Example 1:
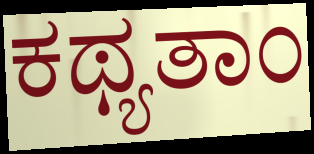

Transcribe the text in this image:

ಕಥ್ಯತಾಂ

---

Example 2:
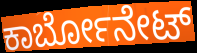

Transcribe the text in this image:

ಕಾರ್ಬೋನೇಟ್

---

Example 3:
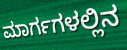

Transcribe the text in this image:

ಮಾರ್ಗಗಳಲ್ಲಿನ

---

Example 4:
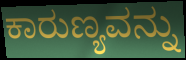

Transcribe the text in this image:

ಕಾರುಣ್ಯವನ್ನು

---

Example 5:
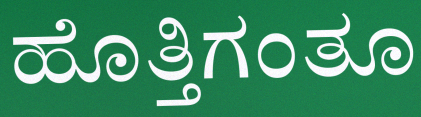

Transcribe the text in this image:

ಹೊತ್ತಿಗಂತೂ